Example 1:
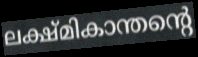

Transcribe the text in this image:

ലക്ഷ്മികാന്തന്റെ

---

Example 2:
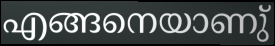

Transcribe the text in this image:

എങ്ങനെയാണു്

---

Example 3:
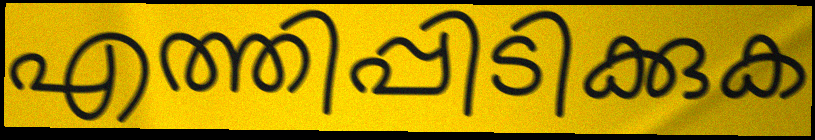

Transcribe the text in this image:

എത്തിപ്പിടിക്കുക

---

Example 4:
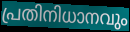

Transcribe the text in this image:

പ്രതിനിധാനവും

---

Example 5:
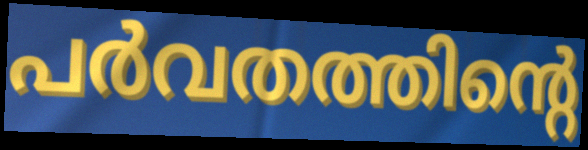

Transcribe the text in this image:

പർവതത്തിന്റെ